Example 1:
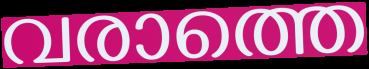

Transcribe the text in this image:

വരാത്തെ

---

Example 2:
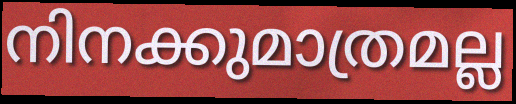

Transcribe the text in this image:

നിനക്കുമാത്രമല്ല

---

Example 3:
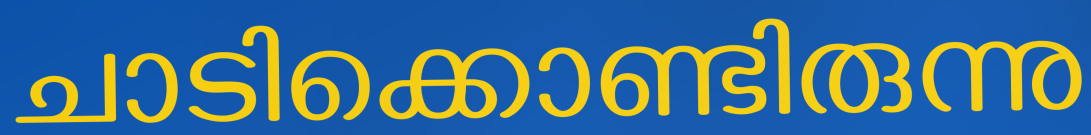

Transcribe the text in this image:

ചാടിക്കൊണ്ടിരുന്നു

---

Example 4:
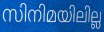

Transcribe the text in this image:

സിനിമയിലില്ല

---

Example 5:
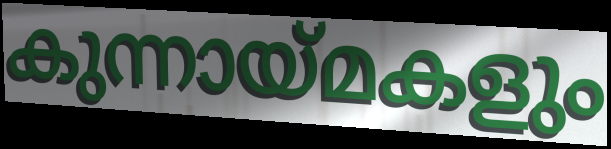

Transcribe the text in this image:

കുന്നായ്മകളും